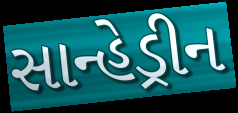
સાન્હેડ્રીન